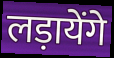
लड़ायेंगे